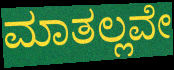
ಮಾತಲ್ಲವೇ